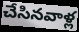
చేసినవాళ్ల